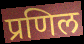
प्रणिल